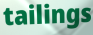
tailings